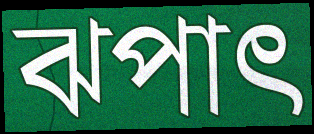
ঝপাৎ